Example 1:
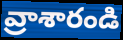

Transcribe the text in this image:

వ్రాశారండి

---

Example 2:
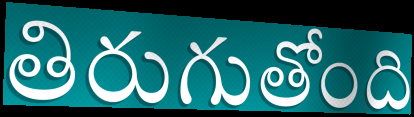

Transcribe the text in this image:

తిరుగుతోంది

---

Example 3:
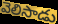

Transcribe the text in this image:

వెలిసాడు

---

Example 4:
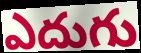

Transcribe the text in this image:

ఎదుగు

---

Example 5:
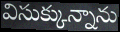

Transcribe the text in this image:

విసుక్కున్నాను